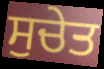
ਸੁਚੇਤ